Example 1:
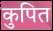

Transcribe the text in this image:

कुपित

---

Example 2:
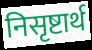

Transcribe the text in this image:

निसृष्टार्थ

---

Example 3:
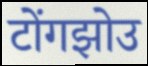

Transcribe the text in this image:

टोंगझोउ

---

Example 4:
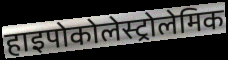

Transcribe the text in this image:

हाइपोकोलेस्ट्रोलेमिक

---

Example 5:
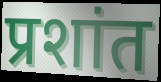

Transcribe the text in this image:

प्रशांत